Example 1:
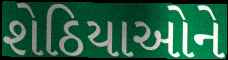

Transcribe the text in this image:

શેઠિયાઓને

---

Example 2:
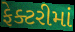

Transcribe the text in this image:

ફેક્ટરીમાં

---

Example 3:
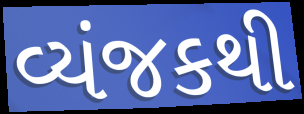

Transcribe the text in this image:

વ્યંજકથી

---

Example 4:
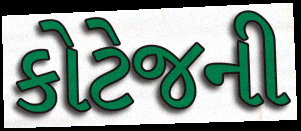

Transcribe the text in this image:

કોટેજની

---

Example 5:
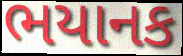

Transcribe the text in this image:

ભયાનક